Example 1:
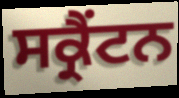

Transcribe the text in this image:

ਸਕ੍ਰੈਂਟਨ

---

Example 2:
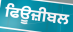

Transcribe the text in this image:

ਫਿਊਜ਼ੀਬਲ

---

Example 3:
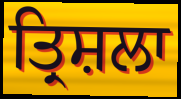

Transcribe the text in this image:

ਤ੍ਰਿਸ਼ਲਾ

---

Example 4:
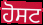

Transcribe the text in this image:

ਹੋਸਟ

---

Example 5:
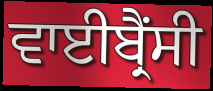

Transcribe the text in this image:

ਵਾਈਬ੍ਰੈਂਸੀ